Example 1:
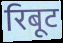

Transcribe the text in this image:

रिबूट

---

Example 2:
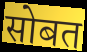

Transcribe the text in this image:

सोबत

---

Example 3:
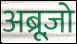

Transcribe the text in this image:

अब्रूज़ो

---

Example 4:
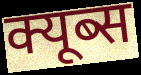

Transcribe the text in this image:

क्यूब्स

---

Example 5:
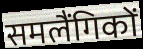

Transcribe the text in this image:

समलैंगिकों